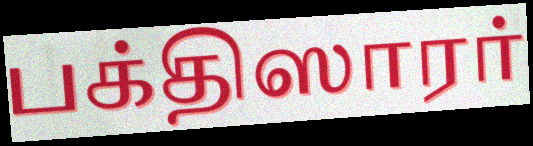
பக்திஸாரர்